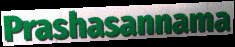
Prashasannama